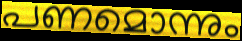
പണമൊന്നും